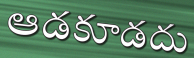
ఆడకూడదు